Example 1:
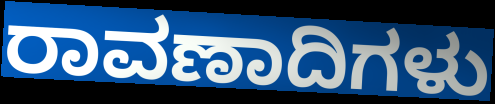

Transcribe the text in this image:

ರಾವಣಾದಿಗಳು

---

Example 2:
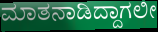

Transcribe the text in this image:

ಮಾತನಾಡಿದ್ದಾಗಲೀ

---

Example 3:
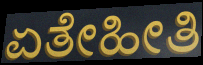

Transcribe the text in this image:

ಏತೇಹೀತಿ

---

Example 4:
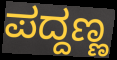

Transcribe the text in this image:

ಪದ್ದಣ್ಣ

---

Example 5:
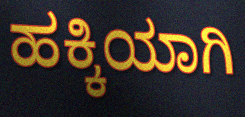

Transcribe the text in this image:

ಹಕ್ಕಿಯಾಗಿ